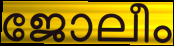
ജോലീം